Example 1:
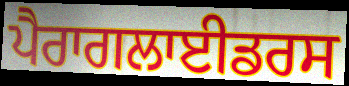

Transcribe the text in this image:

ਪੈਰਾਗਲਾਈਡਰਸ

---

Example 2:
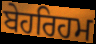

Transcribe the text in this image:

ਬੇਹਰਿਹਮ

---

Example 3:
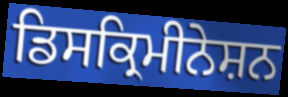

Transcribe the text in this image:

ਡਿਸਕ੍ਰਿਮੀਨੇਸ਼ਨ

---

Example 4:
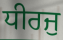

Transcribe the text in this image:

ਧੀਰਜੁ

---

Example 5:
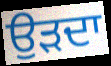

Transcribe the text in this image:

ਉੜਦਾ